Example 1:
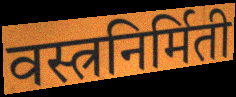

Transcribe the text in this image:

वस्त्रनिर्मिती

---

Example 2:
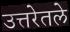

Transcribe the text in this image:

उत्तरेतले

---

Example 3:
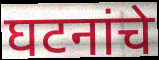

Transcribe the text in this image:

घटनांचे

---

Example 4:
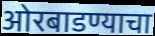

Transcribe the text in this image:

ओरबाडण्याचा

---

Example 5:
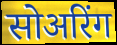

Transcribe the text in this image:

सोअरिंग